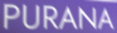
PURANA